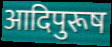
आदिपुरूष